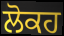
ਲੋਕਹ